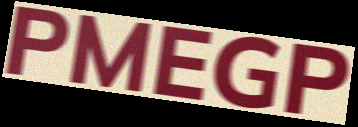
PMEGP